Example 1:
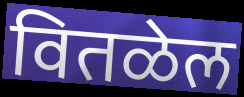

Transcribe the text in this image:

वितळेल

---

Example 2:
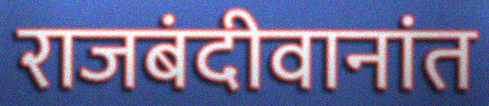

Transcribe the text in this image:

राजबंदीवानांत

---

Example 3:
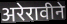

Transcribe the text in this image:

अरेरावीने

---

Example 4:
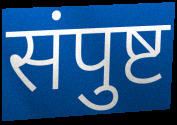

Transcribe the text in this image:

संपुष्ट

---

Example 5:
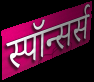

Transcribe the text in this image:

स्पॉन्सर्स